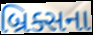
બ્રિક્સના